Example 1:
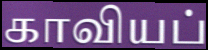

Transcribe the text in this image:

காவியப்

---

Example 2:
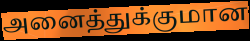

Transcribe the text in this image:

அனைத்துக்குமான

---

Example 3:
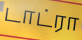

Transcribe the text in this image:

டாட்ரா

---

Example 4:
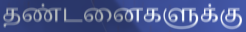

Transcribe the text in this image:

தண்டனைகளுக்கு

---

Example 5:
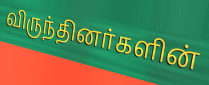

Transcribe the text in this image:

விருந்தினர்களின்